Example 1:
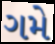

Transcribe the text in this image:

ગમે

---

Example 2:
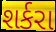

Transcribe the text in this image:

શર્કરા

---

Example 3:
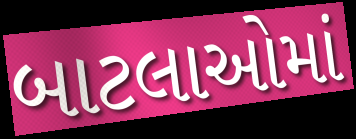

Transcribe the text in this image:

બાટલાઓમાં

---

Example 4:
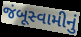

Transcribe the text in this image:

જંબૂસ્વામીનું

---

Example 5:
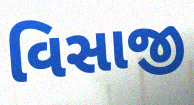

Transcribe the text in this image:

વિસાજી